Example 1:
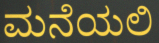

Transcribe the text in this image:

ಮನೆಯಲಿ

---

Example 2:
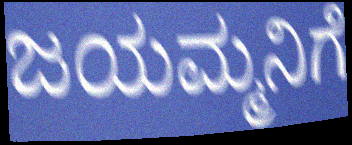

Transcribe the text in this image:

ಜಯಮ್ಮನಿಗೆ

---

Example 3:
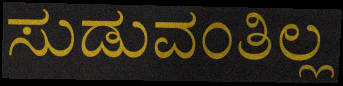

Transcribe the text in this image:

ಸುಡುವಂತಿಲ್ಲ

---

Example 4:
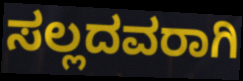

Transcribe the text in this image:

ಸಲ್ಲದವರಾಗಿ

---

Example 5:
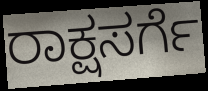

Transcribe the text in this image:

ರಾಕ್ಷಸರ್ಗೆ